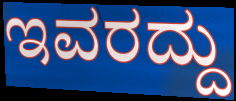
ಇವರದ್ದು